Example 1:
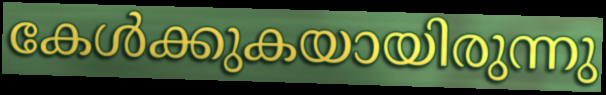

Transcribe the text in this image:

കേൾക്കുകയായിരുന്നു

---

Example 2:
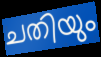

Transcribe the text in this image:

ചതിയും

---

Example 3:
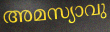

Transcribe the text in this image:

അമസ്യാവു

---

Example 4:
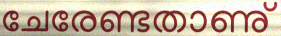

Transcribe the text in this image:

ചേരേണ്ടതാണു്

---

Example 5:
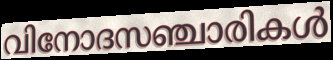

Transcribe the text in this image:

വിനോദസഞ്ചാരികൾ